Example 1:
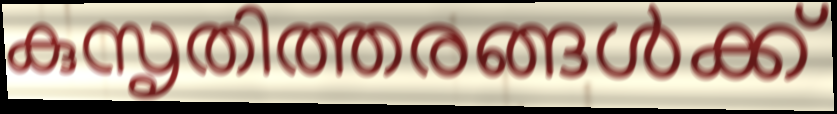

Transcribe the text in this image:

കുസൃതിത്തരങ്ങൾക്ക്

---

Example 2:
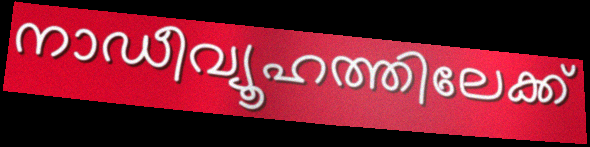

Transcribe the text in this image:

നാഡീവ്യൂഹത്തിലേക്ക്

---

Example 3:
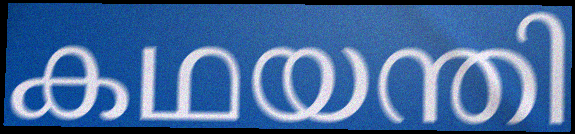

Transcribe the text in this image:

കഥയന്തി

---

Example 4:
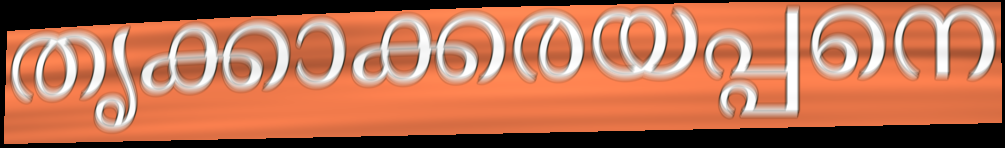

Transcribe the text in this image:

തൃക്കാക്കരയപ്പനെ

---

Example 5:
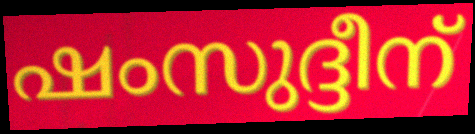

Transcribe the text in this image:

ഷംസുദ്ദീന്